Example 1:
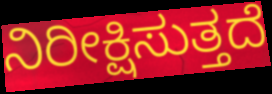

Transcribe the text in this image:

ನಿರೀಕ್ಷಿಸುತ್ತದೆ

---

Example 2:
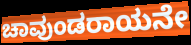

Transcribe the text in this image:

ಚಾವುಂಡರಾಯನೇ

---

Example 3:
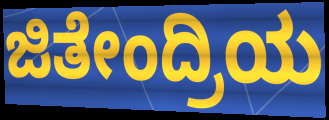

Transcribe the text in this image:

ಜಿತೇಂದ್ರಿಯ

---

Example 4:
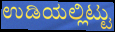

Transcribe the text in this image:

ಉಡಿಯಲ್ಲಿಟ್ಟು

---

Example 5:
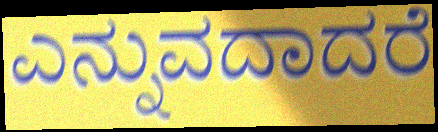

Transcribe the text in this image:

ಎನ್ನುವದಾದರೆ